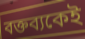
বক্তব্যকেই